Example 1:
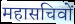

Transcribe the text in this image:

महासचिवों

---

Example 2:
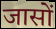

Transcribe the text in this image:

जासों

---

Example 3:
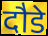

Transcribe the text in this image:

दौडे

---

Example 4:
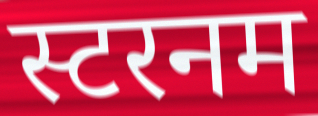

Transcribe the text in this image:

स्टरनम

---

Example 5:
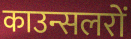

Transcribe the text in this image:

काउन्सलरों